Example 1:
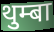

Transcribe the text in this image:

थुम्बा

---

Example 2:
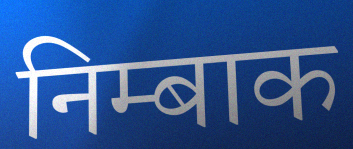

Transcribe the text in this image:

निम्बाक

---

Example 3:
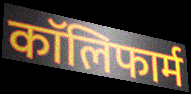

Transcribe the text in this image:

कॉलिफार्म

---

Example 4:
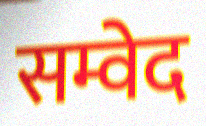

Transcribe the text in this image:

सम्वेद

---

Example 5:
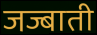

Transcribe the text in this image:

जज्‍बाती